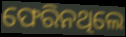
ଫେରିନଥିଲେ